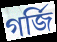
গৰ্জি